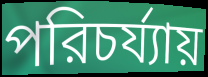
পরিচর্য্যায়